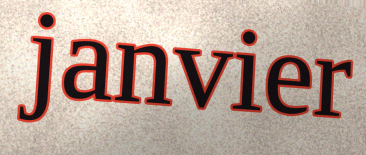
janvier